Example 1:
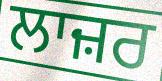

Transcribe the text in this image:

ਲਾਜ਼ਰ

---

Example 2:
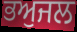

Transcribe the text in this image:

ਭਅੁਜਲ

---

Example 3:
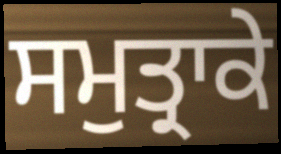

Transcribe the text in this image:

ਸਮੁਤ੍ਰਾਕੇ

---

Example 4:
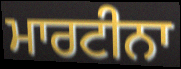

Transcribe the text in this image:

ਮਾਰਟੀਨਾ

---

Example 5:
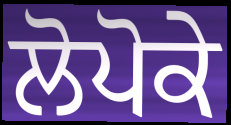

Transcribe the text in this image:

ਲੋਪੋਕੇ